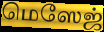
மெஸேஜ்